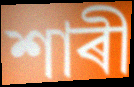
শাৰী